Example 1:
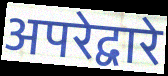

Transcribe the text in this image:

अपरेद्वारे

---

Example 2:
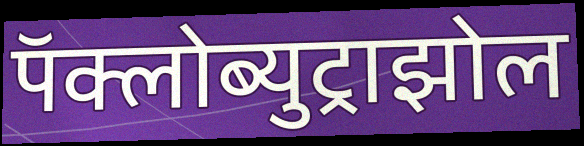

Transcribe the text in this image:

पॅक्लोब्युट्राझोल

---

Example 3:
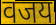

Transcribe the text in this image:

वजय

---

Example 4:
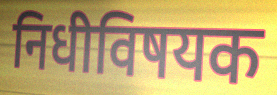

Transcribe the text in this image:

निधीविषयक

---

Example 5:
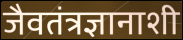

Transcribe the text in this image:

जैवतंत्रज्ञानाशी